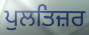
ਪੁਲਤਿਜ਼ਰ